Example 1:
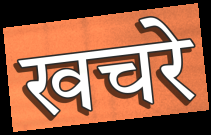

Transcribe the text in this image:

खचरे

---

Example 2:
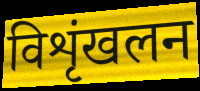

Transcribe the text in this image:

विशृंखलन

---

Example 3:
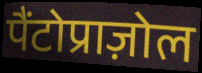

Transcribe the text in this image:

पैंटोप्राज़ोल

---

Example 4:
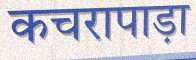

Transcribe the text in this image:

कचरापाड़ा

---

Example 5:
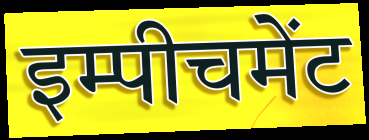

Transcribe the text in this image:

इम्पीचमेंट